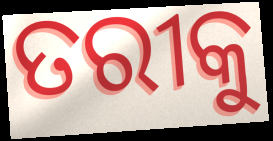
ତରୀକୁ